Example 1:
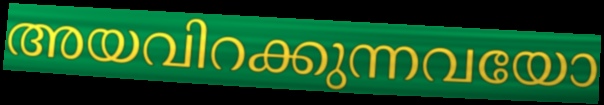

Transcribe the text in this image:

അയവിറക്കുന്നവയോ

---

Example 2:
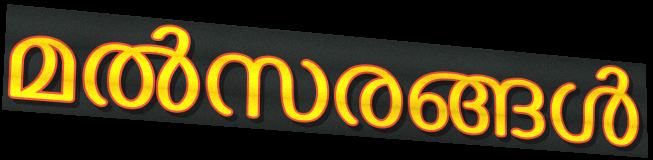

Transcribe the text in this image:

മൽസരങ്ങൾ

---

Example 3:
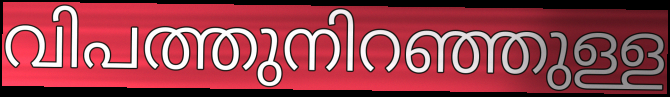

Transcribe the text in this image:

വിപത്തുനിറഞ്ഞുള്ള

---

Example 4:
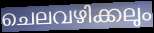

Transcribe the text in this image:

ചെലവഴിക്കലും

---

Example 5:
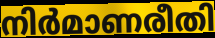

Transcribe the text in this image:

നിർമാണരീതി